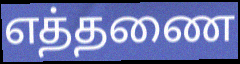
எத்தணை